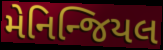
મેનિન્જિયલ